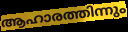
ആഹാരത്തിന്നും